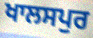
ਖਾਲਸਪੁਰ